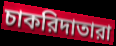
চাকরিদাতারা